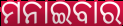
ମନାଇବାର